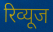
रिव्यूज